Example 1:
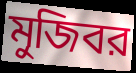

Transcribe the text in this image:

মুজিবর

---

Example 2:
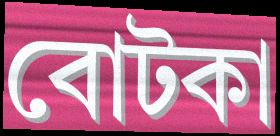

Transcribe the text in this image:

বোটকা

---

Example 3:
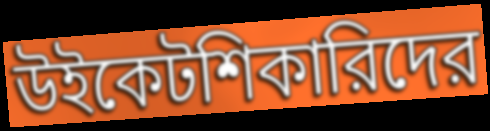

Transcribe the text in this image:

উইকেটশিকারিদের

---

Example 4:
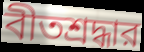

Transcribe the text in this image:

বীতশ্রদ্ধার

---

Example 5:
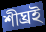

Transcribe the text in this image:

শীঘ্রই